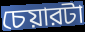
চেয়ারটা